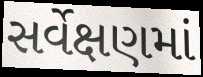
સર્વેક્ષણમાં